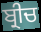
ਬ੍ਰੀਚ